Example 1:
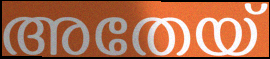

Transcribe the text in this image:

അതേയ്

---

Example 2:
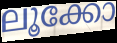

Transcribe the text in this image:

ലൂക്കോ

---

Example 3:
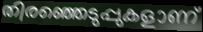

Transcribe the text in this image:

തിരഞ്ഞെടുപ്പുകളാണ്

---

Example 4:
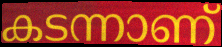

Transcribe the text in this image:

കടന്നാണ്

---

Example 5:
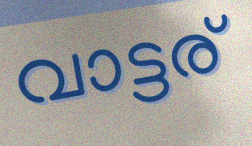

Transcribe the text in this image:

വാട്ടര്